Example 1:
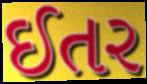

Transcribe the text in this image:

ઈતર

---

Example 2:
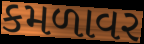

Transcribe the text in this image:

કમળાવર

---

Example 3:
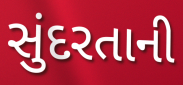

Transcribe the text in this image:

સુંદરતાની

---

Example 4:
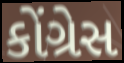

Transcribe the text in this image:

કોંગ્રેસ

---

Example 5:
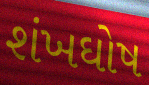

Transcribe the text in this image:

શંખઘોષ